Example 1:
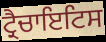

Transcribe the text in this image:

ਟ੍ਰੈਚਾਇਟਿਸ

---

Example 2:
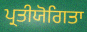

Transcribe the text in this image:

ਪ੍ਰਤੀਯੋਗਿਤਾ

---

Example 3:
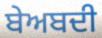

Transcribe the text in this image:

ਬੇਅਬਦੀ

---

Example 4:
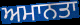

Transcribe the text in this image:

ਅਮਾਨਤਾ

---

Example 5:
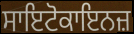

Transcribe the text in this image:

ਸਾਇਟੋਕਾਇਨਜ਼